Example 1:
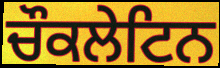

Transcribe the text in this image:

ਚੌਕਲੇਟਿਨ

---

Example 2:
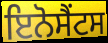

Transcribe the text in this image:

ਇਨੋਸੈਂਟਸ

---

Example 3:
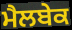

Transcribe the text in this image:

ਮੈਲਬੇਕ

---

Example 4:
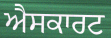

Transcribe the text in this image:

ਐਸਕਾਰਟ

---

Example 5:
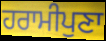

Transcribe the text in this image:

ਹਰਾਮੀਪੁਣਾ